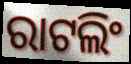
ରାଟଲିଂ